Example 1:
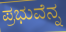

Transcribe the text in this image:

ಪ್ರಭುವೆನ್ನ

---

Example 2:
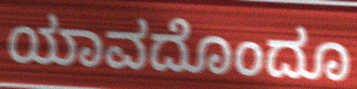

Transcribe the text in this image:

ಯಾವದೊಂದೂ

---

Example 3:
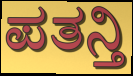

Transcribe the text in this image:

ಪತನ್ತಿ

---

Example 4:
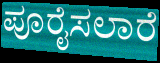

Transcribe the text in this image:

ಪೂರೈಸಲಾರೆ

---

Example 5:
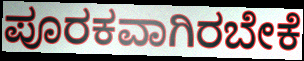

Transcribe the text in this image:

ಪೂರಕವಾಗಿರಬೇಕೆ